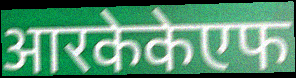
आरकेकेएफ